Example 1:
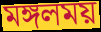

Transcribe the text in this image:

মঙ্গলময়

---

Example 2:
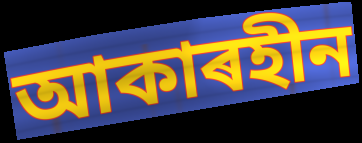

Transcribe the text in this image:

আকাৰহীন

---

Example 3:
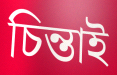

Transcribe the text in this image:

চিন্তাই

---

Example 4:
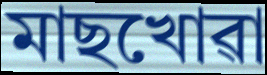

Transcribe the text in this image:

মাছখোৱা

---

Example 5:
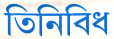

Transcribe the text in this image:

তিনিবিধ